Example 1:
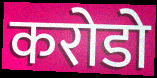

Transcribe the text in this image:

करोडो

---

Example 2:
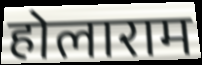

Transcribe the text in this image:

होलाराम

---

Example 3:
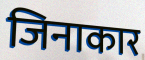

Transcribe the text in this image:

जिनाकार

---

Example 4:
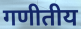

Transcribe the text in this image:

गणीतीय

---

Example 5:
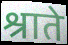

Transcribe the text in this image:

श्राते